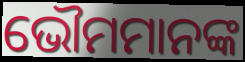
ଭୌମମାନଙ୍କ